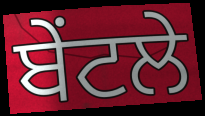
ਬੇਂਟਲੇ